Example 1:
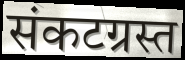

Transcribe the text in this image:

संकटग्रस्त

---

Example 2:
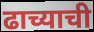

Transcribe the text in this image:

ढाच्याची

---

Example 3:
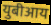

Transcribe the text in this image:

युबीआय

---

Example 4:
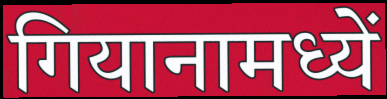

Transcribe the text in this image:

गियानामध्यें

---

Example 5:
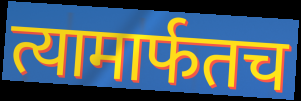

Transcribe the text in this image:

त्यामार्फतच